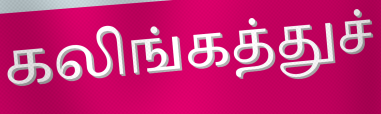
கலிங்கத்துச்